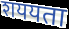
शययता